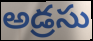
అడ్రసు